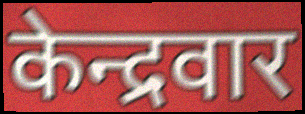
केन्द्रवार